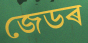
জেডৰ